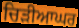
ਚਿੜੀਆਘਰ